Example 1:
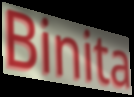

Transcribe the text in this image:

Binita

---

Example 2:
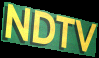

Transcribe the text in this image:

NDTV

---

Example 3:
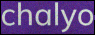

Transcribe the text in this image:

chalyo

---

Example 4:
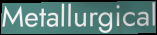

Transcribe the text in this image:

Metallurgical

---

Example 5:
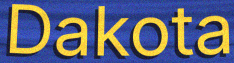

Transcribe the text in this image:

Dakota